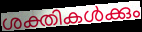
ശക്തികൾക്കും